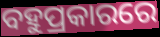
ବହୁପ୍ରକାରରେ